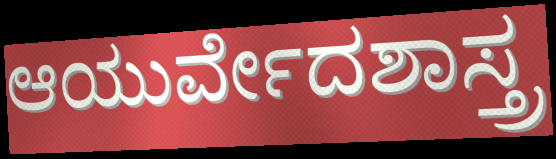
ಆಯುರ್ವೇದಶಾಸ್ತ್ರ